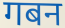
गबन